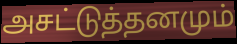
அசட்டுத்தனமும்